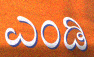
ಎಂಡಿ